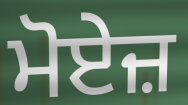
ਮੋਏਜ਼